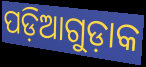
ପଡ଼ିଆଗୁଡ଼ାକ